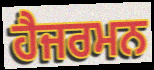
ਹੈਜਰਮਨ